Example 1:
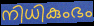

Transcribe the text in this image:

നിധികുംഭം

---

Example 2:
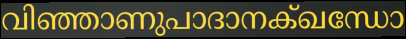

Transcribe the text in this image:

വിഞ്ഞാണുപാദാനക്ഖന്ധോ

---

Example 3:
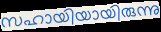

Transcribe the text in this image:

സഹായിയായിരുന്നു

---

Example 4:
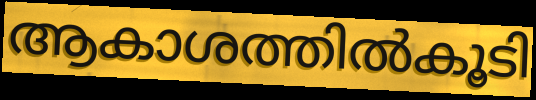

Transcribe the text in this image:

ആകാശത്തിൽകൂടി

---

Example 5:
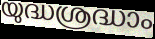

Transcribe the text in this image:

യുദ്ധശ്രദ്ധാം